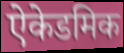
ऐकेडमिक